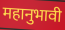
महानुभावी